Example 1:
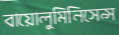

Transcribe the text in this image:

বায়োলুমিনিসেন্স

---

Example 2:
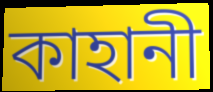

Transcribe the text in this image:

কাহানী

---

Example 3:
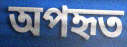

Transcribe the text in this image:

অপহৃত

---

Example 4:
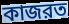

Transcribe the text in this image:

কাজরত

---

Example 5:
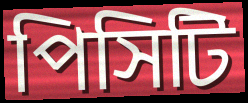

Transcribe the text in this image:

পিসিটি